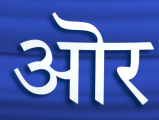
ऒर